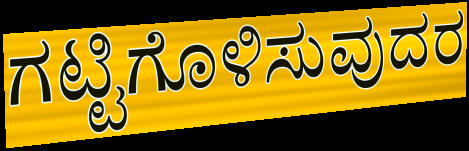
ಗಟ್ಟಿಗೊಳಿಸುವುದರ